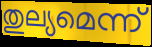
തുല്യമെന്ന്